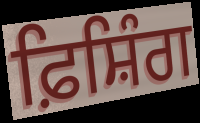
ਫ਼ਿਸ਼ਿੰਗ